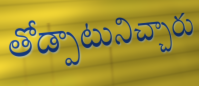
తోడ్పాటునిచ్చారు